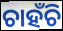
ଚାହଁଚି